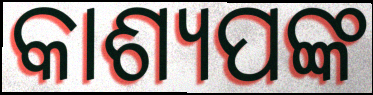
କାଶ୍ୟପଙ୍କ